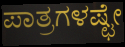
ಪಾತ್ರಗಳಷ್ಟೇ